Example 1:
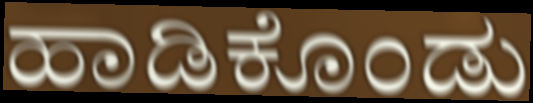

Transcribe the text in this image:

ಹಾಡಿಕೊಂಡು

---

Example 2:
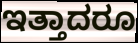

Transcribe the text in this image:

ಇತ್ತಾದರೂ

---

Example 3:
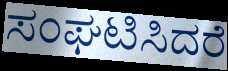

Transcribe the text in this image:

ಸಂಘಟಿಸಿದರೆ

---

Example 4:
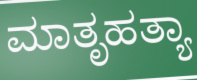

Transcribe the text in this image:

ಮಾತೃಹತ್ಯಾ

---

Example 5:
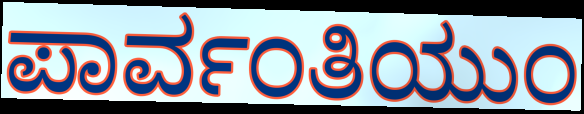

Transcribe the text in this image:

ಪಾರ್ವಂತಿಯುಂ